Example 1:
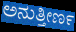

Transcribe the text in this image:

ಅನುತ್ತೀರ್ಣ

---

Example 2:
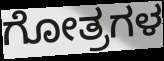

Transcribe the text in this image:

ಗೋತ್ರಗಳ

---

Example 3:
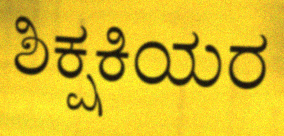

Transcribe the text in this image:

ಶಿಕ್ಷಕಿಯರ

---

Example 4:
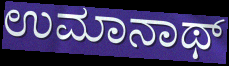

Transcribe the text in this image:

ಉಮಾನಾಥ್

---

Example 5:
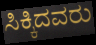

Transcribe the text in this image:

ಸಿಕ್ಕಿದವರು